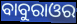
ବାବୁରାଓର